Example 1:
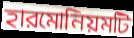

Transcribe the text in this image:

হারমোনিয়মটি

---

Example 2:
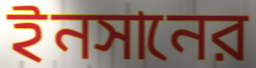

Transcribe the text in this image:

ইনসানের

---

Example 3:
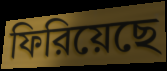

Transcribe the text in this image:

ফিরিয়েছে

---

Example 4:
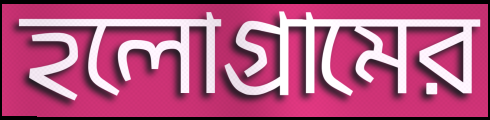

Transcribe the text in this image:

হলোগ্রামের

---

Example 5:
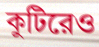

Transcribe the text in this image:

কুটিরেও